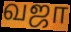
வஜா